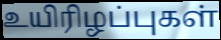
உயிரிழப்புகள்